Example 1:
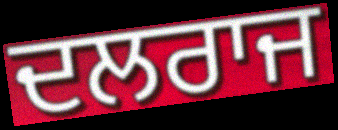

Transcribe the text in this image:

ਦਲਰਾਜ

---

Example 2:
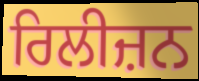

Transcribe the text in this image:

ਰਿਲੀਜ਼ਨ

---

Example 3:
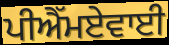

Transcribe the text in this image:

ਪੀਐੱਮਏਵਾਈ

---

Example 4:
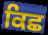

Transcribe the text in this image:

ਕਿਛ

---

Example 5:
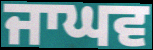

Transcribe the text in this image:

ਜਾਘਵ